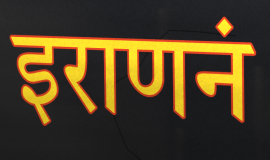
इराणनं